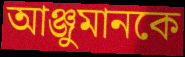
আঞ্জুমানকে